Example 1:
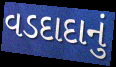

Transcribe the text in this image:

વડદાદાનું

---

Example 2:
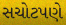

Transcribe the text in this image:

સચોટપણે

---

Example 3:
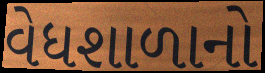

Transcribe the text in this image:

વેધશાળાનો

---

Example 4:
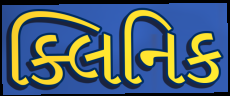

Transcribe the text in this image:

ક્લિનિક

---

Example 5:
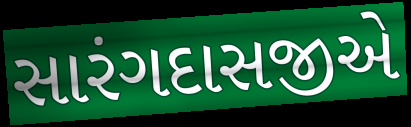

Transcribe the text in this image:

સારંગદાસજીએ